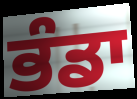
ਭੰਡਾ